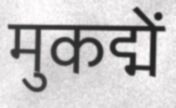
मुकद्में